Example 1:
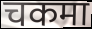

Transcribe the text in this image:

चकमा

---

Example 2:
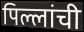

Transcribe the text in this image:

पिल्लांची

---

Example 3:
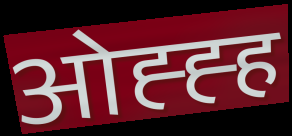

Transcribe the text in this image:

ओह्ह्ह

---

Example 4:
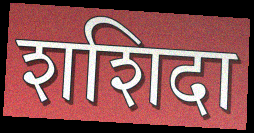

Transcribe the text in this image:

शशिदा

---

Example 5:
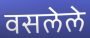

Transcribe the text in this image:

वसलेले